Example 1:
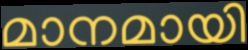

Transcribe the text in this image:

മാനമായി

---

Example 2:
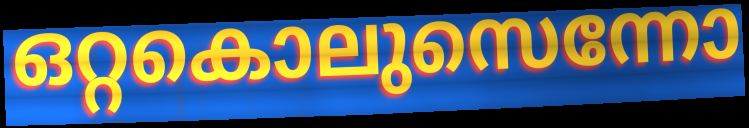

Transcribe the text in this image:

ഒറ്റകൊലുസെന്നോ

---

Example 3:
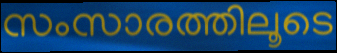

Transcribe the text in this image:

സംസാരത്തിലൂടെ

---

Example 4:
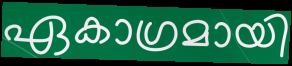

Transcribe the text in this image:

ഏകാഗ്രമായി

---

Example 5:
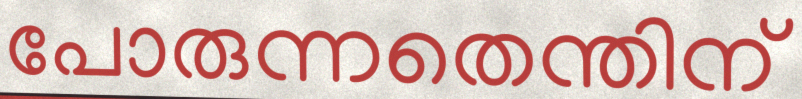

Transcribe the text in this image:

പോരുന്നതെന്തിന്